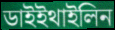
ডাইইথাইলিন